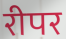
रीपर